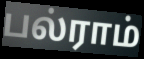
பல்ராம்